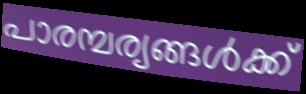
പാരമ്പര്യങ്ങൾക്ക്